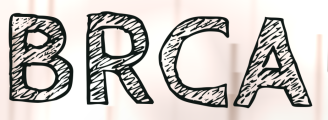
BRCA